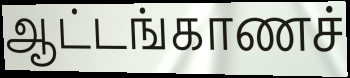
ஆட்டங்காணச்